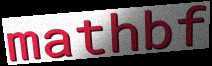
mathbf